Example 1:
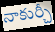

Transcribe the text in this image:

నాకుర్చీ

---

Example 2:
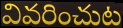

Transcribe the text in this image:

వివరించుట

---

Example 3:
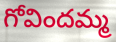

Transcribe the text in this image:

గోవిందమ్మ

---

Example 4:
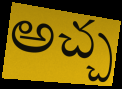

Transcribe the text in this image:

అచ్చ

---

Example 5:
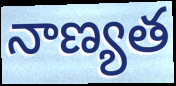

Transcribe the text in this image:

నాణ్యత